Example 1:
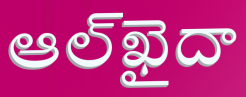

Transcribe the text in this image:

ఆల్‌ఖైదా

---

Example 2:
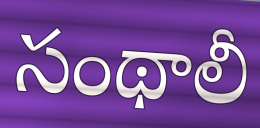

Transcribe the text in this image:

సంథాలీ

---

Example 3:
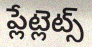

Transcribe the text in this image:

ప్లేట్లెట్స్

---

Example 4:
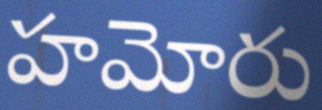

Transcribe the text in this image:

హమోరు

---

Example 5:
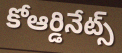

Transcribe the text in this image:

కోఆర్డినేట్స్